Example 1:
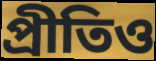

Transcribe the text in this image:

প্রীতিও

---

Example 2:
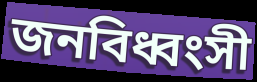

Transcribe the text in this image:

জনবিধ্বংসী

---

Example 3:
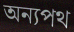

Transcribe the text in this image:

অন্যপথ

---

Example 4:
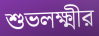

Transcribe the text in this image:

শুভলক্ষ্মীর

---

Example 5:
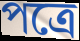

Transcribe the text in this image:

পত্রে